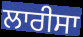
ਲਾਰੀਸਾ